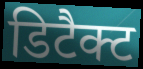
डिटैक्ट